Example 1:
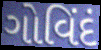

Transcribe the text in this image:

ગોવિંદં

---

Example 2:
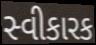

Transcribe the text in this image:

સ્વીકારક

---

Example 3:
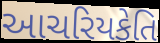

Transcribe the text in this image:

આચરિયકેતિ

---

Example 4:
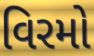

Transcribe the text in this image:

વિરમો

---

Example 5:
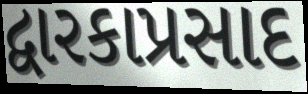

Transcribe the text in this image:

દ્વારકાપ્રસાદ